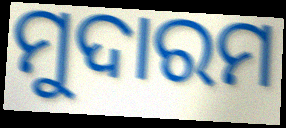
ମୁଦାରମ